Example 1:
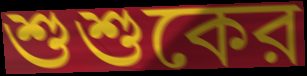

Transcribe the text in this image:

শুশুকের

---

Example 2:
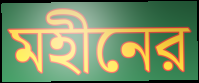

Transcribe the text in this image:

মহীনের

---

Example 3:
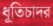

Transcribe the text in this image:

ধূতিচাদর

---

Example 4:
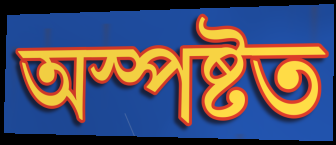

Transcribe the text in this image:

অস্পষ্টত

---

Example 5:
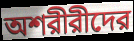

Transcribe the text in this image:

অশরীরীদের